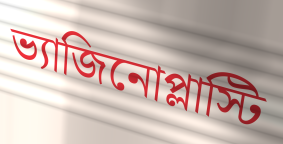
ভ্যাজিনোপ্লাস্টি